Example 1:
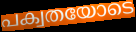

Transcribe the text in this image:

പക്വതയോടെ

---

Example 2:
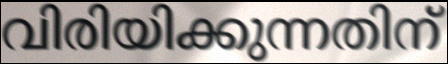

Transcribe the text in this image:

വിരിയിക്കുന്നതിന്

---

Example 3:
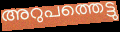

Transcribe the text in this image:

അറുപത്തെട്ടു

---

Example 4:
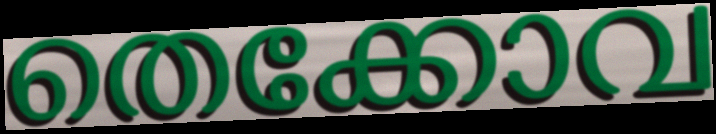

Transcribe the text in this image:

തെക്കോവ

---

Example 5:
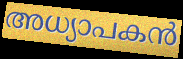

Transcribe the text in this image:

അധ്യാപകൻ